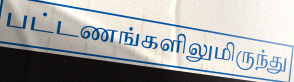
பட்டணங்களிலுமிருந்து